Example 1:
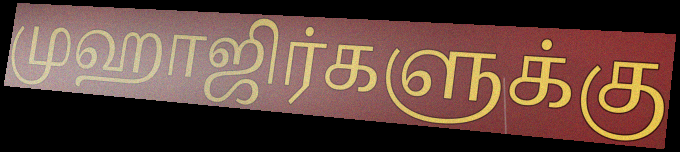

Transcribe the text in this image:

முஹாஜிர்களுக்கு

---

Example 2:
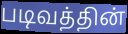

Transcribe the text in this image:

படிவத்தின்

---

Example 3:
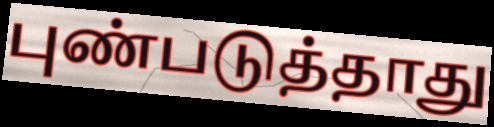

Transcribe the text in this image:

புண்படுத்தாது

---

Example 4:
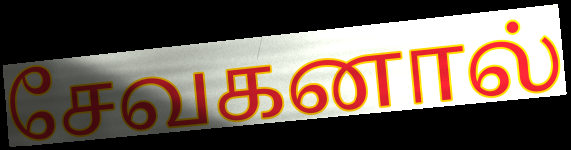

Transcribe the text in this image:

சேவகனால்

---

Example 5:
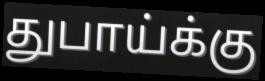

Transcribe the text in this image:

துபாய்க்கு